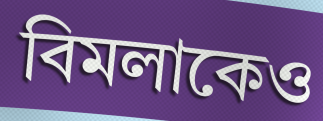
বিমলাকেও